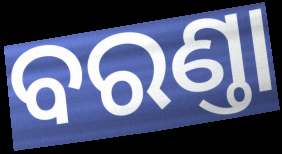
ବରଣ୍ତା